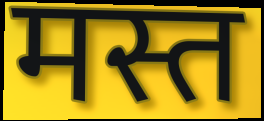
मस्त